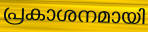
പ്രകാശനമായി